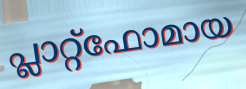
പ്ലാറ്റ്ഫോമായ